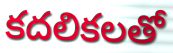
కదలికలతో